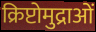
क्रिप्टोमुद्राओं